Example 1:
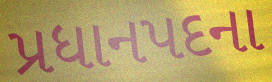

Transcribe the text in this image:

પ્રધાનપદના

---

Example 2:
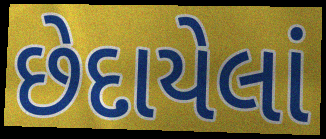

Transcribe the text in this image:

છેદાયેલાં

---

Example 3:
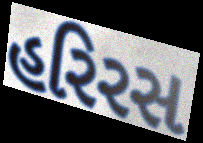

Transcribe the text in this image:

હરિરસ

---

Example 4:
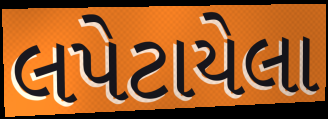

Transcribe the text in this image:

લપેટાયેલા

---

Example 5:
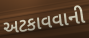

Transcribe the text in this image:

અટકાવવાની